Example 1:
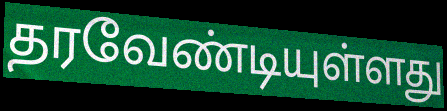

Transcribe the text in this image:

தரவேண்டியுள்ளது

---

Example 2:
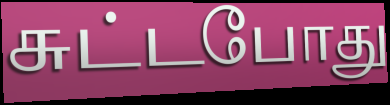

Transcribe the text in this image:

சுட்டபோது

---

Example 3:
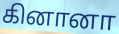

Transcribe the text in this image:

கினானா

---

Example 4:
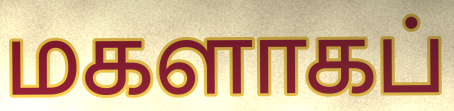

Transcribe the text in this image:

மகளாகப்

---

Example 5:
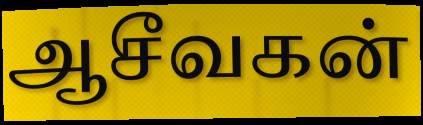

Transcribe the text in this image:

ஆசீவகன்